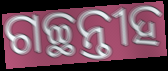
ଗଚ୍ଛନ୍ତୀହ